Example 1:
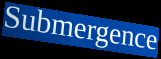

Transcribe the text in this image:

Submergence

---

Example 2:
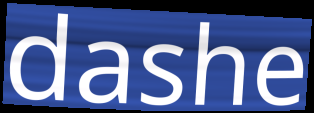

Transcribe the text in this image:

dashe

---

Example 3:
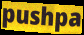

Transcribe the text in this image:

pushpa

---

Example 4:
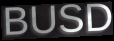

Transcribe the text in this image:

BUSD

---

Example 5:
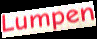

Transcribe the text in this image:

Lumpen